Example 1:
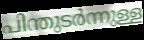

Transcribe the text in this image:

പിന്തുടർന്നുള്ള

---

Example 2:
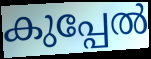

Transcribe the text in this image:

കുപ്പേൽ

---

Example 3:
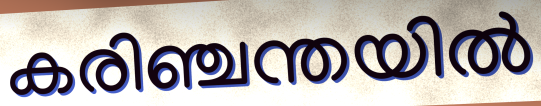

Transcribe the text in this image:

കരിഞ്ചന്തയിൽ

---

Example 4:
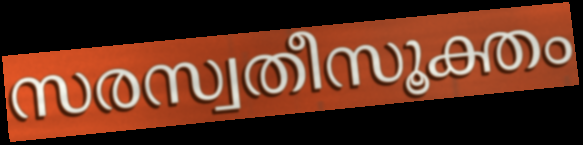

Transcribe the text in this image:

സരസ്വതീസൂക്തം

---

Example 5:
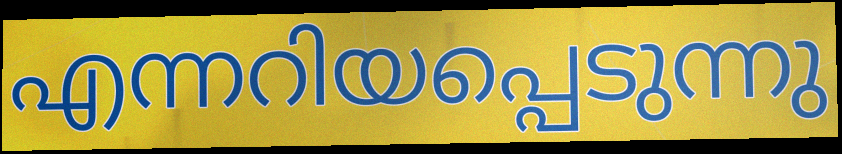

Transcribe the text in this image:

എന്നറിയപ്പെടുന്നു